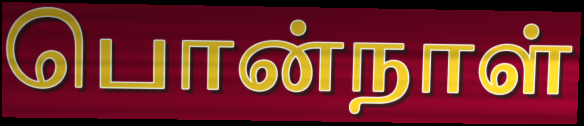
பொன்நாள்